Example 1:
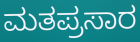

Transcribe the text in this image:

ಮತಪ್ರಸಾರ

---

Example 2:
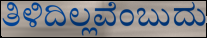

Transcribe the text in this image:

ತಿಳಿದಿಲ್ಲವೆಂಬುದು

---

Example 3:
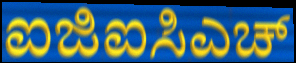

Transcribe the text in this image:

ಐಜಿಐಸಿಎಚ್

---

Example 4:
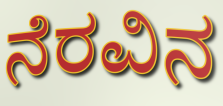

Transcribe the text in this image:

ನೆರವಿನ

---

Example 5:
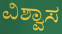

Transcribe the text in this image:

ವಿಶ್ವಾಸ